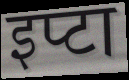
इप्टा